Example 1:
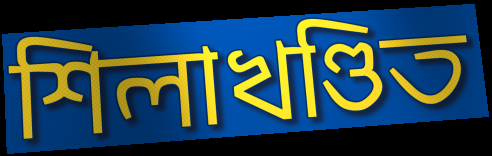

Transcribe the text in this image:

শিলাখণ্ডিত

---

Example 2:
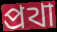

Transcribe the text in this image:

প্ৰথা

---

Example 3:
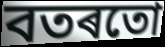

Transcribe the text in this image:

বতৰতো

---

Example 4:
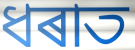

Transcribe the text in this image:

ধৰাত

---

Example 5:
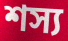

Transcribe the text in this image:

শস্য